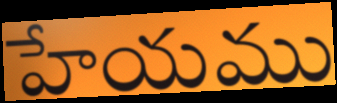
హేయము